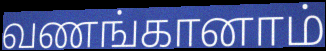
வணங்கானாம்